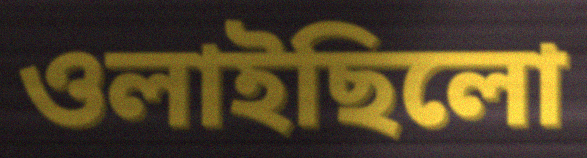
ওলাইছিলো